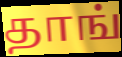
தாங்